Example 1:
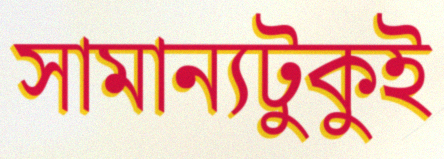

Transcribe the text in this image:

সামান্যটুকুই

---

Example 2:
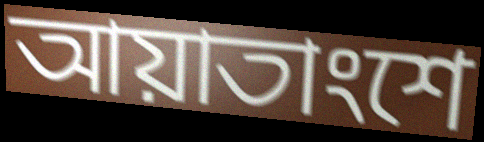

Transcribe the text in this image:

আয়াতাংশে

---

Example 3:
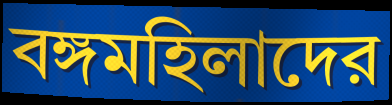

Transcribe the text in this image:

বঙ্গমহিলাদের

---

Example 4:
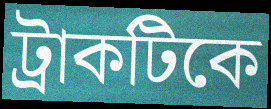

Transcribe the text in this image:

ট্রাকটিকে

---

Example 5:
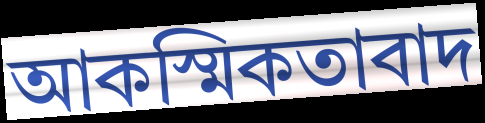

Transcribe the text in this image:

আকস্মিকতাবাদ